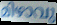
മിഴാവു